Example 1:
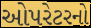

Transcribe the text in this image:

ઓપરેટરનો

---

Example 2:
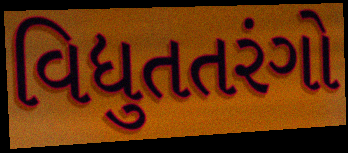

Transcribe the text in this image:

વિદ્યુતતરંગો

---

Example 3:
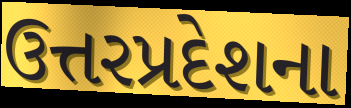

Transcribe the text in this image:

ઉત્તરપ્રદેશના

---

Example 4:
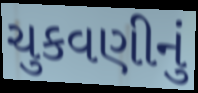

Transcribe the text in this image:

ચુકવણીનું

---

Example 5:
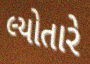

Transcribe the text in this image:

લ્યોતારે